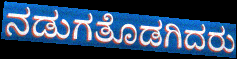
ನಡುಗತೊಡಗಿದರು